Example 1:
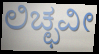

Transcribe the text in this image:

ಲಿಚ್ಛವೀ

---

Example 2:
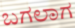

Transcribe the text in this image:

ಬಗಲಾಗ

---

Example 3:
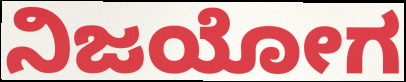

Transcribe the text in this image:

ನಿಜಯೋಗ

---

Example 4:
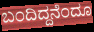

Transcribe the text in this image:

ಬಂದಿದ್ದನೆಂದೂ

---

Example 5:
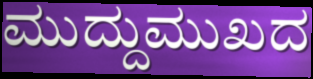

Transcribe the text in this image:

ಮುದ್ದುಮುಖದ